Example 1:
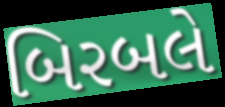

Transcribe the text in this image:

બિરબલે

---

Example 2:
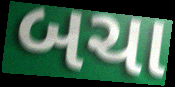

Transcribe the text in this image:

બચા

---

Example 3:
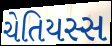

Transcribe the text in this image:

ચેતિયસ્સ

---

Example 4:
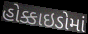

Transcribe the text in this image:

હોક્કાઇડોમાં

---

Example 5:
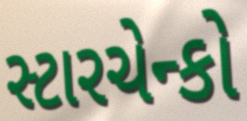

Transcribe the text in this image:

સ્ટારચેન્કો